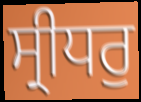
ਸ੍ਰੀਧਰੁ